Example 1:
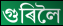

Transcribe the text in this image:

গুৰিলৈ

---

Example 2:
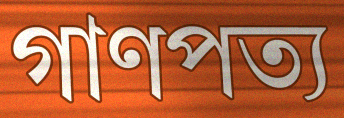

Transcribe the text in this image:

গাণপত্য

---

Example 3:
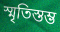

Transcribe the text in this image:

স্মৃতিস্তম্ভ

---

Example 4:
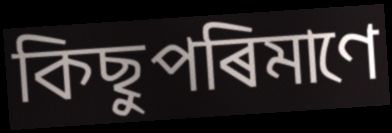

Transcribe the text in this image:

কিছুপৰিমাণে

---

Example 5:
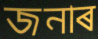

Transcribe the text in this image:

জনাৰ